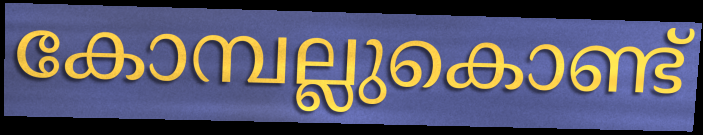
കോമ്പല്ലുകൊണ്ട്